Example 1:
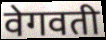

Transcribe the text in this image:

वेगवती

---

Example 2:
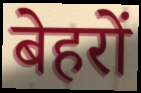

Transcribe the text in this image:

बेहरों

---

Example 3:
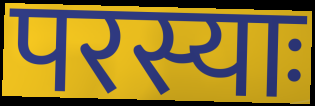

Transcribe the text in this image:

परस्याः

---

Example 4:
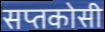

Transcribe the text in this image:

सप्तकोसी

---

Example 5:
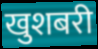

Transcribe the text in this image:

खुशबरी